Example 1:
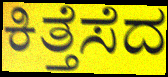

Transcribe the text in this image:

ಕಿತ್ತೆಸೆದ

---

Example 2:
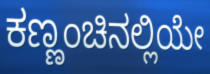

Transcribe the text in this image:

ಕಣ್ಣಂಚಿನಲ್ಲಿಯೇ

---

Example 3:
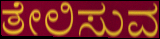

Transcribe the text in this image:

ತೇಲಿಸುವ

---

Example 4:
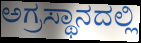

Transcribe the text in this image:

ಅಗ್ರಸ್ಥಾನದಲ್ಲಿ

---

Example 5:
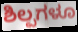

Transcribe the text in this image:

ಶಿಲ್ಪಗಳೂ